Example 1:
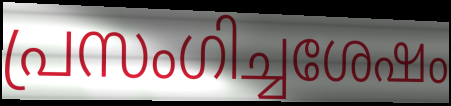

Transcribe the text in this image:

പ്രസംഗിച്ചശേഷം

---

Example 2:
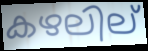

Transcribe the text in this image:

കഴലില്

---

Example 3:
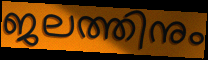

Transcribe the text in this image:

ജലത്തിനും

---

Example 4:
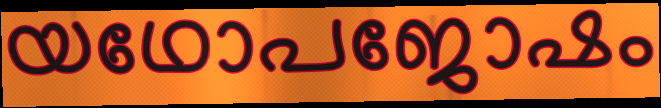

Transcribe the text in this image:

യഥോപജോഷം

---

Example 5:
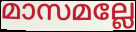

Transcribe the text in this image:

മാസമല്ലേ